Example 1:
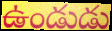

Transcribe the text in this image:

ఉండుడు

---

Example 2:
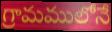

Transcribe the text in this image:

గ్రామములోనే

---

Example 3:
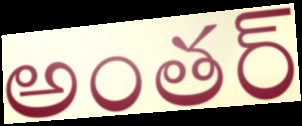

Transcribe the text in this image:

అంతర్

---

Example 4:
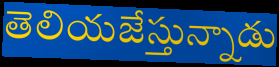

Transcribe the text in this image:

తెలియజేస్తున్నాడు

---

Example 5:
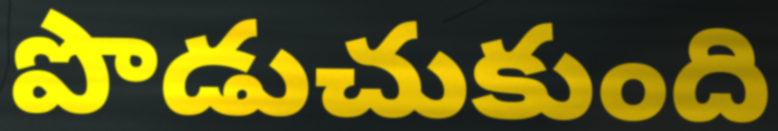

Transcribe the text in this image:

పొడుచుకుంది